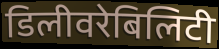
डिलीवरेबिलिटी